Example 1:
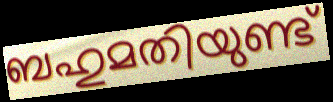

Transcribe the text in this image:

ബഹുമതിയുണ്ട്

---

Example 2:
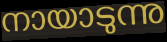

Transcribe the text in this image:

നായാടുന്നു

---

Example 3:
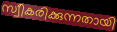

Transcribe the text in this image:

സ്വീകരിക്കുന്നതായി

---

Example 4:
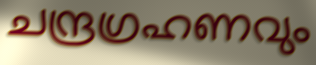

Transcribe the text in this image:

ചന്ദ്രഗ്രഹണവും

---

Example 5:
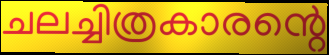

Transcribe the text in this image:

ചലച്ചിത്രകാരന്റെ